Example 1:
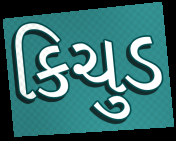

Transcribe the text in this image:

કિચુડ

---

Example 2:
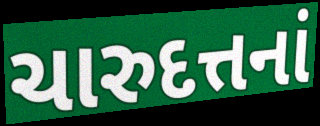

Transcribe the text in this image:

ચારુદત્તનાં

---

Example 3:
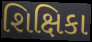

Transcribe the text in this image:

શિક્ષિકા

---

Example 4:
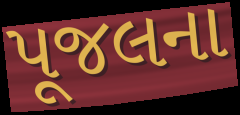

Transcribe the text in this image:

પૂજલના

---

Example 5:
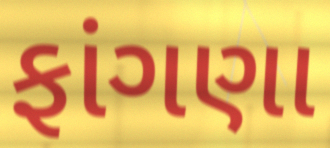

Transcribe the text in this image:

ફાંગણા